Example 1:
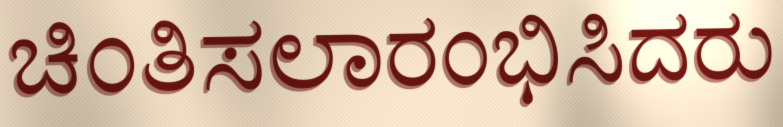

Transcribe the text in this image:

ಚಿಂತಿಸಲಾರಂಭಿಸಿದರು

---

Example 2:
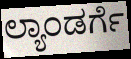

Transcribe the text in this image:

ಲ್ಯಾಂಡರ್ಗೆ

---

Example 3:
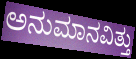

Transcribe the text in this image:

ಅನುಮಾನವಿತ್ತು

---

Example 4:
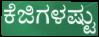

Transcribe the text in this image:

ಕೆಜಿಗಳಷ್ಟು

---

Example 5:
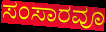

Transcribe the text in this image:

ಸಂಸಾರವೂ